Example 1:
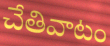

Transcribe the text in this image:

చేతివాటం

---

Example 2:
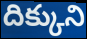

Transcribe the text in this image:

దిక్కుని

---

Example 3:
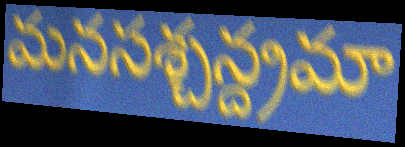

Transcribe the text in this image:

మనసశ్చన్ద్రమా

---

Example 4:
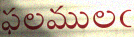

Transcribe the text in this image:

ఫలములఁ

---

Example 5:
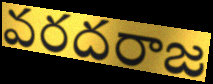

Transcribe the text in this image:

వరదరాజ